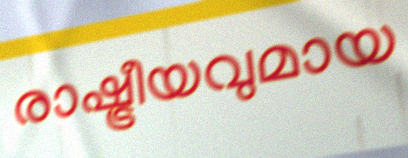
രാഷ്ട്രീയവുമായ